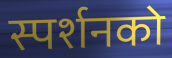
स्पर्शनको